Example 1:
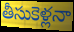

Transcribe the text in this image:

తీసుకెళ్లనా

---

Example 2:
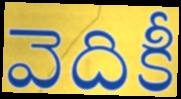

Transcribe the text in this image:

వెదికీ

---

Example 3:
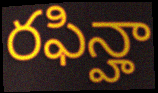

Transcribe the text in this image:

రఫిన్హా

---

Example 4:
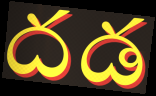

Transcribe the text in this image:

దడ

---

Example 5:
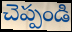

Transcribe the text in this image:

చెప్పండి